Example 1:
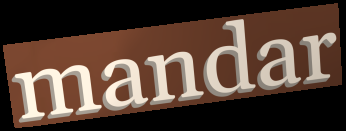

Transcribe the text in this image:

mandar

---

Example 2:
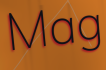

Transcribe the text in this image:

Mag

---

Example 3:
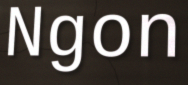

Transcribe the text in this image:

Ngon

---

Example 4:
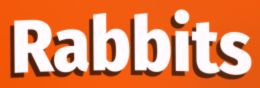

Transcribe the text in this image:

Rabbits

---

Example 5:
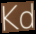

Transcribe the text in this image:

Kd